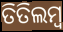
ତିତିଲମ୍ଵ